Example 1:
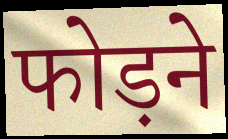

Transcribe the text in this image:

फोड़ने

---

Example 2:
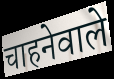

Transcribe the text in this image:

चाहनेवाले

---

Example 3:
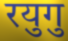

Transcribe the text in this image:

रयुगु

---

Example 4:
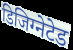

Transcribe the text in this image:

डिजिग्नेटेड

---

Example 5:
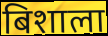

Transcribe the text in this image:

बिशाला